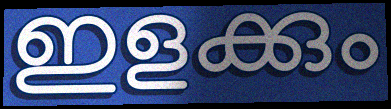
ഇളക്കും